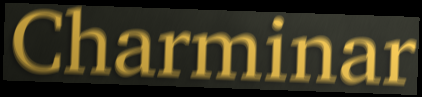
Charminar